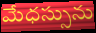
మేధస్సును